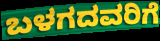
ಬಳಗದವರಿಗೆ